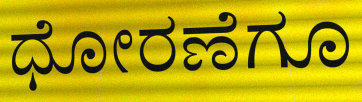
ಧೋರಣೆಗೂ